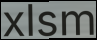
xlsm